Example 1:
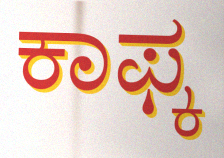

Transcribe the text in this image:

ಕಾಫ್ಕ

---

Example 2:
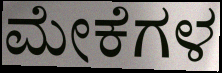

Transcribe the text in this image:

ಮೇಕೆಗಳ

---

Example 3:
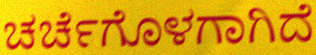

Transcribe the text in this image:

ಚರ್ಚೆಗೊಳಗಾಗಿದೆ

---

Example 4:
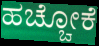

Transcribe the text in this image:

ಹಚ್ಚೋಕೆ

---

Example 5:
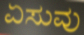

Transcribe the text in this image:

ಏಸುವು